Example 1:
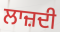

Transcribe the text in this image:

ਲਾਜ਼ਦੀ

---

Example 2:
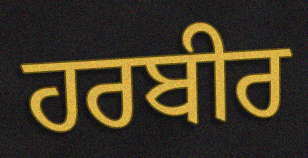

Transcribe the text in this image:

ਹਰਬੀਰ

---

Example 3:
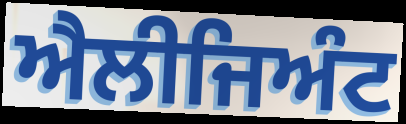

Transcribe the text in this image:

ਐਲੀਜਿਅੰਟ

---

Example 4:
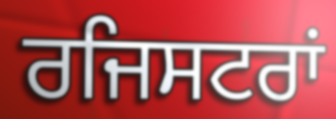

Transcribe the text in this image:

ਰਜਿਸਟਰਾਂ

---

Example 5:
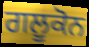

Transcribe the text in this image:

ਗਲੂਕੋਨ